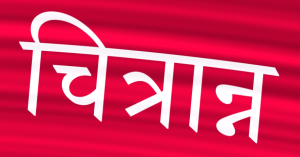
चित्रान्न